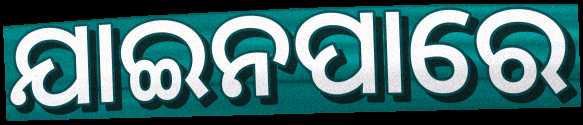
ଯାଇନପାରେ